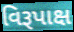
વિરૂપાક્ષ